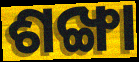
ଶଙ୍ଖା